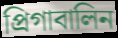
প্রিগাবালিন